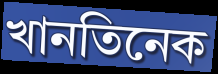
খানতিনেক